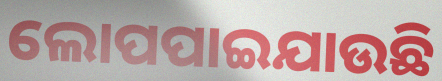
ଲୋପପାଇଯାଉଛି